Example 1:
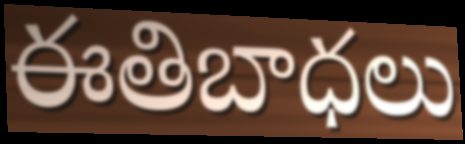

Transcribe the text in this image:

ఈతిబాధలు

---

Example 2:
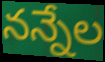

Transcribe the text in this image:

నన్నేల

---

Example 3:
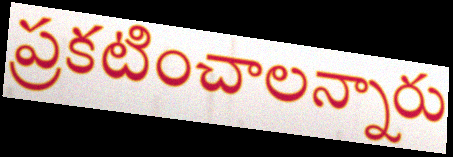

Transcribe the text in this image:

ప్రకటించాలన్నారు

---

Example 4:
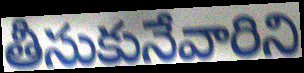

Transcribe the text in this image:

తీసుకునేవారిని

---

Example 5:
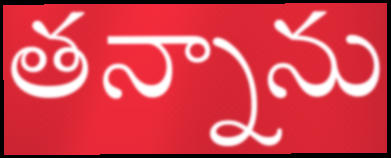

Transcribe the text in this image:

తన్నాను